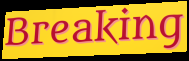
Breaking